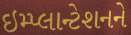
ઇમ્પ્લાન્ટેશનને